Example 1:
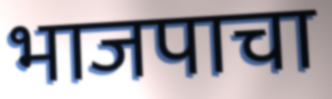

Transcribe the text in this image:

भाजपाचा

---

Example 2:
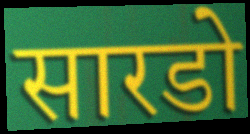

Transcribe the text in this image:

सारडो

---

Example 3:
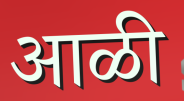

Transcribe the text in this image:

आळी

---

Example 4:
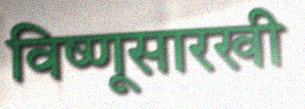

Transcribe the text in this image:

विष्णूसारखी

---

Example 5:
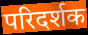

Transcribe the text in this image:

परिदर्शक